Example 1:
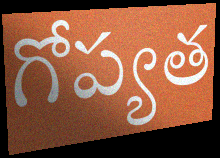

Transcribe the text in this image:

గోప్యత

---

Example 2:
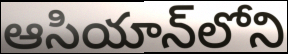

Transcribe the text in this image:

ఆసియాన్‌లోని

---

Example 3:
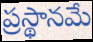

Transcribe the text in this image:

ప్రస్థానమే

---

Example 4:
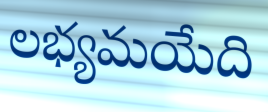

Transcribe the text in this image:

లభ్యమయేది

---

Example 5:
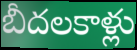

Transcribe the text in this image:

బీదలకాళ్లు